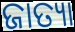
ଜାତ୍ୟା